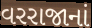
વરરાજાનાં